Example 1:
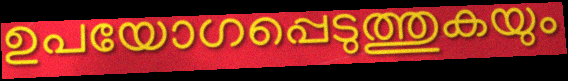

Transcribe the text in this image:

ഉപയോഗപ്പെടുത്തുകയും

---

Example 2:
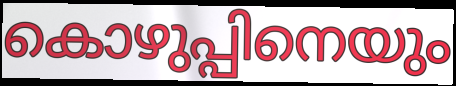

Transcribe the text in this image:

കൊഴുപ്പിനെയും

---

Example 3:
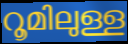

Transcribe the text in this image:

റൂമിലുള്ള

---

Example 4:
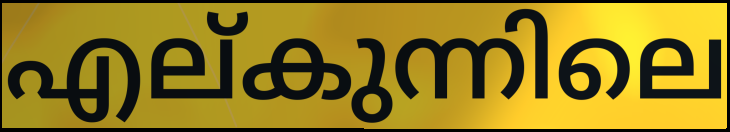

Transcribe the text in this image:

എല്കുന്നിലെ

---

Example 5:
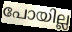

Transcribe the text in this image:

പോയില്ല